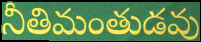
నీతిమంతుడవు